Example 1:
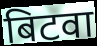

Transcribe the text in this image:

बिटवा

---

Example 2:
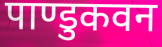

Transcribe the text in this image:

पाण्डुकवन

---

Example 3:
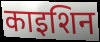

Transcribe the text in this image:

काइशिन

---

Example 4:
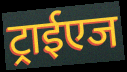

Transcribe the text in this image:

ट्राईएज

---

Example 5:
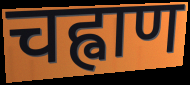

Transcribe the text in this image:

चह्वाण